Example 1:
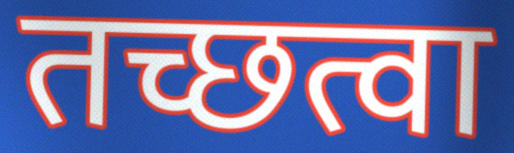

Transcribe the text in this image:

तच्छत्वा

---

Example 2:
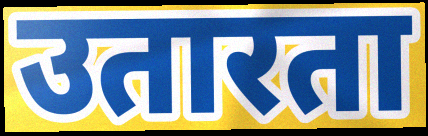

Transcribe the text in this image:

उतारता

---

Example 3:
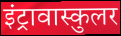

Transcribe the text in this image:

इंट्रावास्कुलर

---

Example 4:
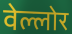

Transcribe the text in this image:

वेल्लोर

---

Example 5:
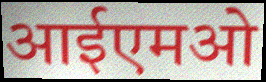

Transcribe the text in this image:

आईएमओ